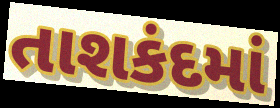
તાશકંદમાં